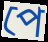
পে